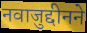
नवाजुद्दीनने